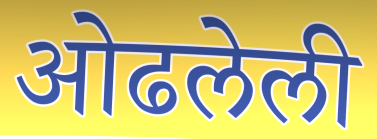
ओढलेली